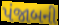
પંજાબની